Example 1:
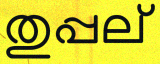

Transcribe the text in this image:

തുപ്പല്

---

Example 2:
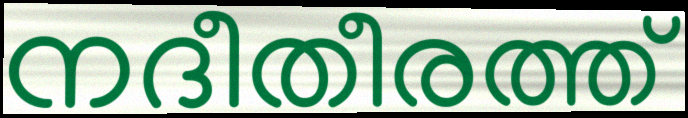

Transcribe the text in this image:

നദീതീരത്ത്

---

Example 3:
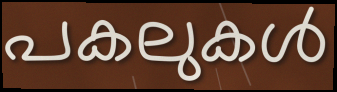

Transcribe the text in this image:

പകലുകൾ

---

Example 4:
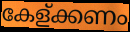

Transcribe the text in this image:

കേള്ക്കണം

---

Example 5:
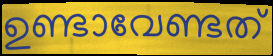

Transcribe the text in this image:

ഉണ്ടാവേണ്ടത്